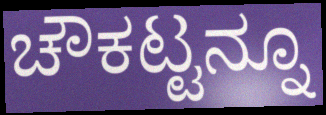
ಚೌಕಟ್ಟನ್ನೂ